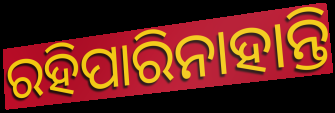
ରହିପାରିନାହାନ୍ତି